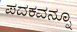
ಪದಕವನ್ನೂ